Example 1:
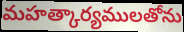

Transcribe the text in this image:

మహత్కార్యములతోను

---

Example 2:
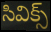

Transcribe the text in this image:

సివిక్స్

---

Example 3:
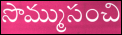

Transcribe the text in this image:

సొమ్ముసంచి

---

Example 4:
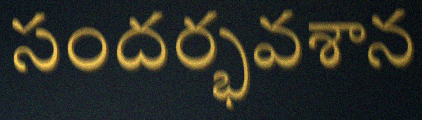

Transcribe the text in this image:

సందర్భవశాన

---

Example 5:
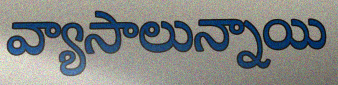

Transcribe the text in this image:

వ్యాసాలున్నాయి